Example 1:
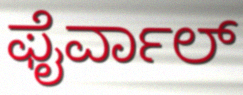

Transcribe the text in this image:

ಫೈರ್ವಾಲ್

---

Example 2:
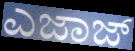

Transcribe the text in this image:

ಎಜಾಜ್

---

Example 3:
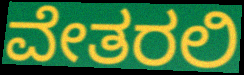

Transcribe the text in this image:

ವೇತರಲಿ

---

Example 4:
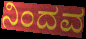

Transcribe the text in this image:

ನಿಂದವ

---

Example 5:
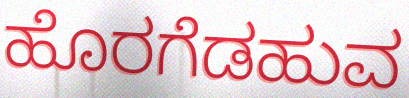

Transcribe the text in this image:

ಹೊರಗೆಡಹುವ